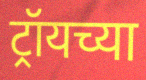
ट्रॉयच्या